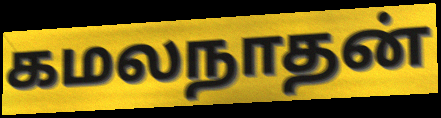
கமலநாதன்